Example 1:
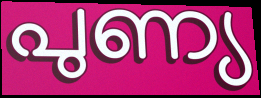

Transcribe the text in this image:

പുണ്യ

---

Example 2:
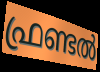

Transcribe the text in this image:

ഫ്രണ്ടൽ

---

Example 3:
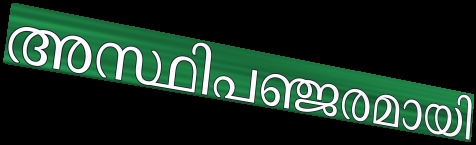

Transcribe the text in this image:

അസ്ഥിപഞ്ജരമായി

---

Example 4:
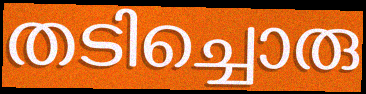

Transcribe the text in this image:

തടിച്ചൊരു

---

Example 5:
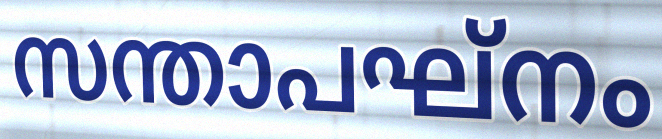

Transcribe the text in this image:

സന്താപഘ്നം